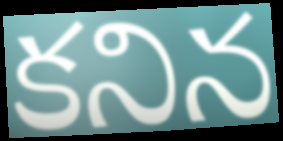
కనిన